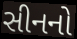
સીનનો